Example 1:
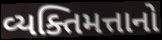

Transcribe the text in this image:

વ્યક્તિમત્તાનો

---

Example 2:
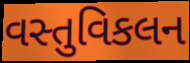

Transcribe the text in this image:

વસ્તુવિકલન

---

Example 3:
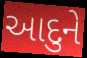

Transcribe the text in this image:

આદુને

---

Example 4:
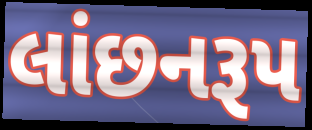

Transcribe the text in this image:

લાંછનરૂપ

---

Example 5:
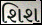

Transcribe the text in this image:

શિશ